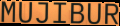
MUJIBUR